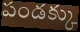
పండక్కు